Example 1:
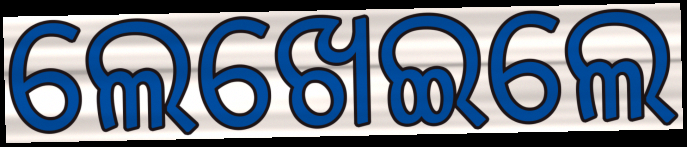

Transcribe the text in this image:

ଲେଖେଇଲେ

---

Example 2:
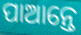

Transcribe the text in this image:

ପାଆନ୍ତେ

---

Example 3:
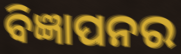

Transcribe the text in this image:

ବିଜ୍ଞାପନର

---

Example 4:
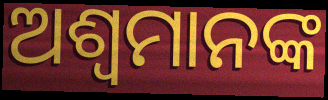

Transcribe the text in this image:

ଅଶ୍ୱମାନଙ୍କ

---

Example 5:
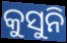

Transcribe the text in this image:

କୁସୁନି